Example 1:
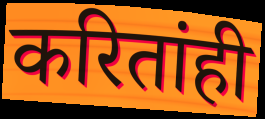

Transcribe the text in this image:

करितांही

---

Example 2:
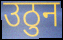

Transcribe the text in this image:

उठुन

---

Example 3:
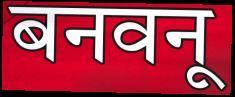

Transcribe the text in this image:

बनवनू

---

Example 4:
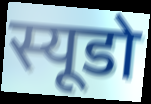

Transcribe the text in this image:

स्यूडो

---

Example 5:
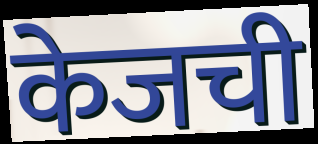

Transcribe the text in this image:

केजची